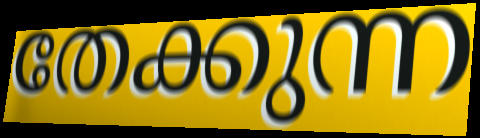
തേക്കുന്ന